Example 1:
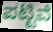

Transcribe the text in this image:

ಪಟ್ಟಿವೆ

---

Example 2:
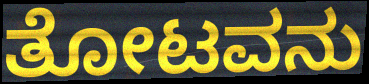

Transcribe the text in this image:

ತೋಟವನು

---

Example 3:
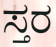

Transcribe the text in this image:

ಸ್ತರ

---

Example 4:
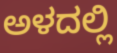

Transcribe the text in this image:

ಅಳದಲ್ಲಿ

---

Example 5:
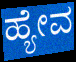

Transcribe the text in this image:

ಹ್ಯೇವ